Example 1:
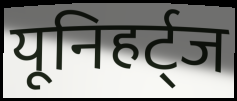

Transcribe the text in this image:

यूनिहर्ट्ज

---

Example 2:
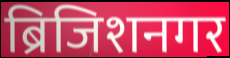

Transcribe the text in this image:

ब्रिजिशनगर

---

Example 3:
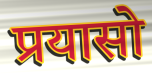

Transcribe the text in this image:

प्रयासो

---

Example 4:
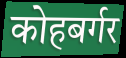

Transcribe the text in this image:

कोहबर्गर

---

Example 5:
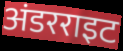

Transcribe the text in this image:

अंडरराइट